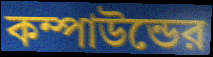
কম্পাউন্ডের